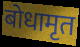
बोधामृत